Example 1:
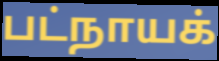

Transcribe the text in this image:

பட்நாயக்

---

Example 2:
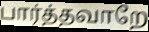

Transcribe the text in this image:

பார்த்தவாறே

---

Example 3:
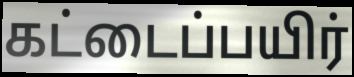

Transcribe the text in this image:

கட்டைப்பயிர்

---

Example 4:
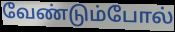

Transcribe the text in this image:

வேண்டும்போல்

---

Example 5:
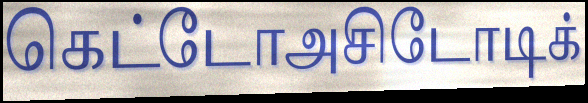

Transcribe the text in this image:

கெட்டோஅசிடோடிக்